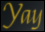
Yay